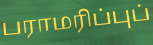
பராமரிப்புப்